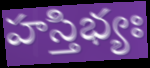
హస్తిభ్యః